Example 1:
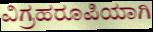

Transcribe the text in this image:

ವಿಗ್ರಹರೂಪಿಯಾಗಿ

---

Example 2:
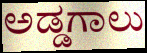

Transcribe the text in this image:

ಅಡ್ಡಗಾಲು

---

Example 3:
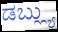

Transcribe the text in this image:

ಡಬ್ಲ್ಯು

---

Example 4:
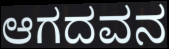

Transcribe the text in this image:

ಆಗದವನ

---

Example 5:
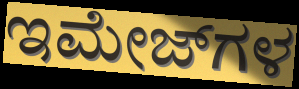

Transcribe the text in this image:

ಇಮೇಜ್‌ಗಳ